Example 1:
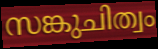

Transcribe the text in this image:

സങ്കുചിത്വം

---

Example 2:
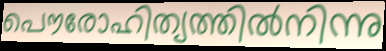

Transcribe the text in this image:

പൌരോഹിത്യത്തിൽനിന്നു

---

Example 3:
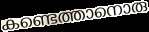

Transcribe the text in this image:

കണ്ടെത്താനൊരു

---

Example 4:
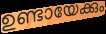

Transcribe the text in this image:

ഉണ്ടായേക്കും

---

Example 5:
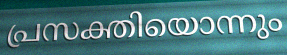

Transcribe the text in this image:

പ്രസക്തിയൊന്നും